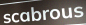
scabrous